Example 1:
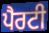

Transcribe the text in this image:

ਪੈਰਟੀ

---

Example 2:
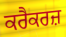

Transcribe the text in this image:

ਕਰੈਕਰਜ਼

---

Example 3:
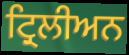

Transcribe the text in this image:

ਟ੍ਰਿਲੀਅਨ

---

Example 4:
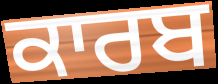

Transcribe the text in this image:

ਕਾਰਬ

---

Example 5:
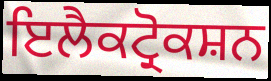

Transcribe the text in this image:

ਇਲੈਕਟ੍ਰੋਕਸ਼ਨ